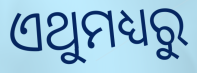
ଏଥୁମଧ୍ୟରୁ